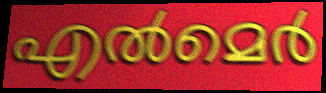
എൽമെർ